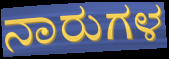
ನಾರುಗಳ